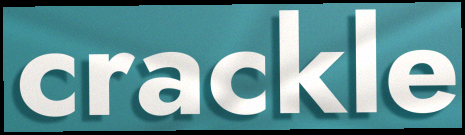
crackle